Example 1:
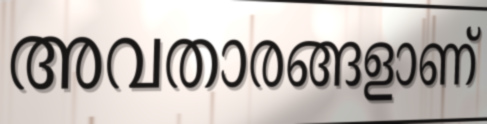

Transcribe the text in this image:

അവതാരങ്ങളാണ്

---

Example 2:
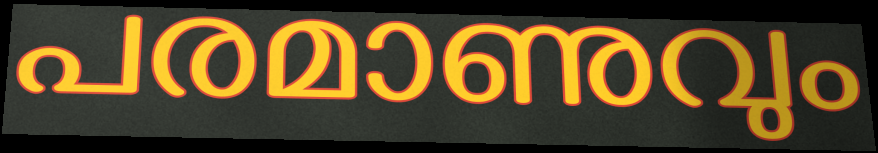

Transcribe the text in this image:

പരമാണുവും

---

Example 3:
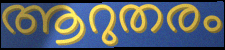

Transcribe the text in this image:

ആറുതരം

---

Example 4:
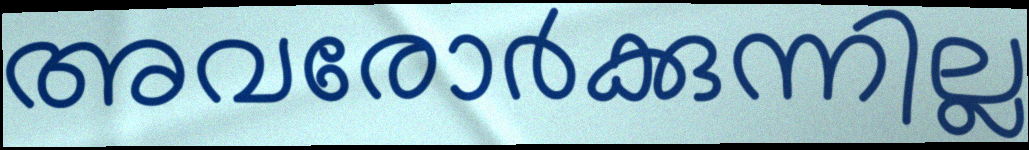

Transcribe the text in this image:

അവരോർക്കുന്നില്ല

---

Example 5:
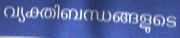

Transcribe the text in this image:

വ്യക്തിബന്ധങ്ങളുടെ